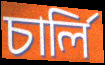
চার্লি